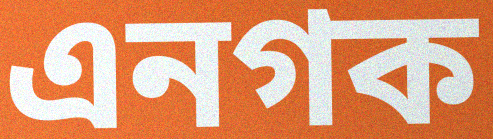
এনগক